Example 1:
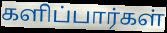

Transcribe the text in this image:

களிப்பார்கள்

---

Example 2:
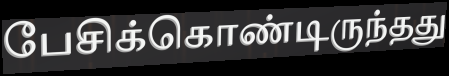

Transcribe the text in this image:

பேசிக்கொண்டிருந்தது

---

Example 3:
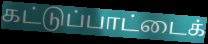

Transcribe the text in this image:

கட்டுப்பாட்டைக்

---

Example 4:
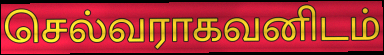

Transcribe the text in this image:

செல்வராகவனிடம்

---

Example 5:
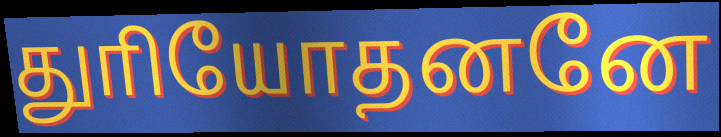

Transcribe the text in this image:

துரியோதனனே